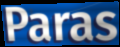
Paras